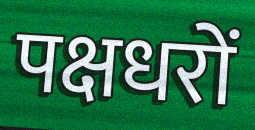
पक्षधरों